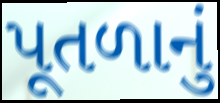
પૂતળાનું